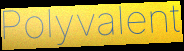
Polyvalent